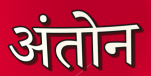
अंतोन